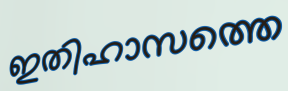
ഇതിഹാസത്തെ